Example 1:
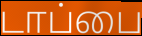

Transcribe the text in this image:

டாப்பை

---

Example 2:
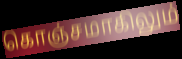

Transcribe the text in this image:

கொஞ்சமாகிலும்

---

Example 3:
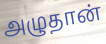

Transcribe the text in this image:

அழுதான்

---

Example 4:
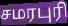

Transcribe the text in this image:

சமரபுரி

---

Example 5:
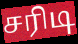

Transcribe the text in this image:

சரிடி